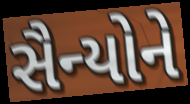
સૈન્યોને